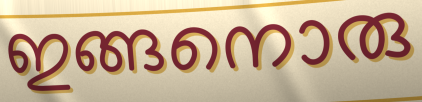
ഇങ്ങനൊരു